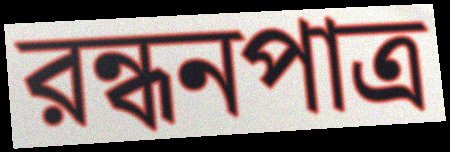
রন্ধনপাত্র